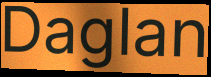
Daglan